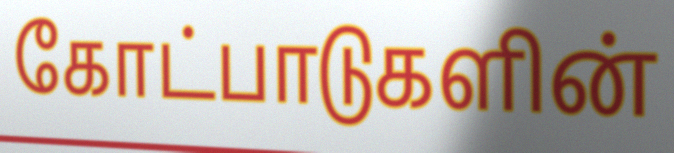
கோட்பாடுகளின்